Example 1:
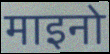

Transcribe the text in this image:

माइनो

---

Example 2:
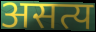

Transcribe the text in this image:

असत्य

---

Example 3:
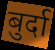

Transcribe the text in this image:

बुर्दा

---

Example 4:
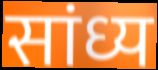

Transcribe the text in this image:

सांध्य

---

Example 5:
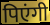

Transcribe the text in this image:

पिएंगी